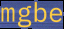
mgbe